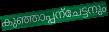
കുഞ്ഞാപ്പന്ചേട്ടനും